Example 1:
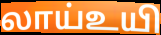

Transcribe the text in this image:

லாய்உயி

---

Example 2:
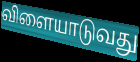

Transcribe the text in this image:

விளையாடுவது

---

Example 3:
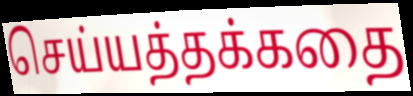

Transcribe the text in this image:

செய்யத்தக்கதை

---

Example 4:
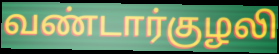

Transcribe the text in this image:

வண்டார்குழலி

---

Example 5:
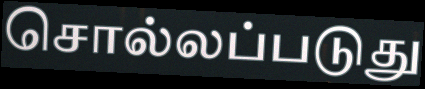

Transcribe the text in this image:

சொல்லப்படுது